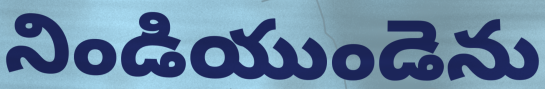
నిండియుండెను